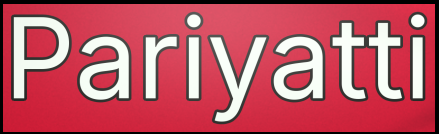
Pariyatti